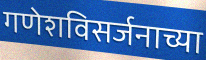
गणेशविसर्जनाच्या